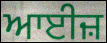
ਆਈਜ਼